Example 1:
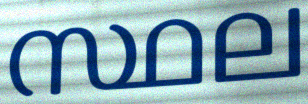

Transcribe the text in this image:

സ്ഥല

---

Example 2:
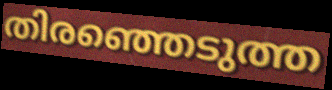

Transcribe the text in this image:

തിരഞ്ഞെടുത്ത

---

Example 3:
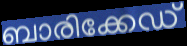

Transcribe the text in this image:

ബാരിക്കേഡ്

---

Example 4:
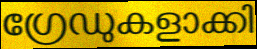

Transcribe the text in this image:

ഗ്രേഡുകളാക്കി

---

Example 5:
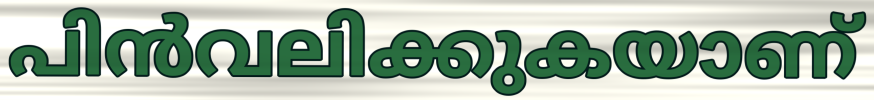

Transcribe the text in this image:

പിൻവലിക്കുകയാണ്